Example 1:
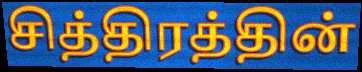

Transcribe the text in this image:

சித்திரத்தின்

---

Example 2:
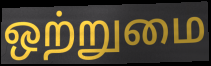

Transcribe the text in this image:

ஒற்றுமை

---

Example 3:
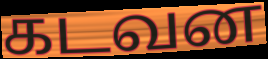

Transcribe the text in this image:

கடவன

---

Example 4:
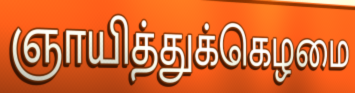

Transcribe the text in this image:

ஞாயித்துக்கெழமை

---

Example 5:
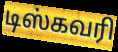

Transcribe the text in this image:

டிஸ்கவரி